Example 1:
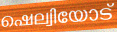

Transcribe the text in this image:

ഷെല്വിയോട്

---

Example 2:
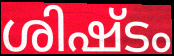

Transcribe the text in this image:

ശിഷ്ടം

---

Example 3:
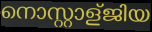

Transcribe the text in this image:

നൊസ്റ്റാള്ജിയ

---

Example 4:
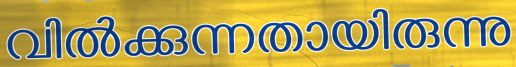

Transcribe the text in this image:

വിൽക്കുന്നതായിരുന്നു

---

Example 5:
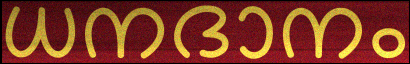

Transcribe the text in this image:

ധനദാനം